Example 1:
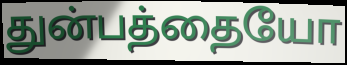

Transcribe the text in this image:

துன்பத்தையோ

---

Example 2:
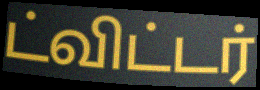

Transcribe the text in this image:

ட்விட்டர்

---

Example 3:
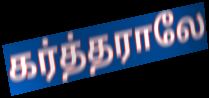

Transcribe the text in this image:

கர்த்தராலே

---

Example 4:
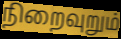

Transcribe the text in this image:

நிறைவுறும்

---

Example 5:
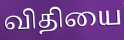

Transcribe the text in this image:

விதியை